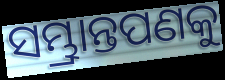
ସମ୍ଭ୍ରାନ୍ତପଣକୁ